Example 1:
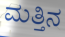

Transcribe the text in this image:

ಮತ್ತಿನ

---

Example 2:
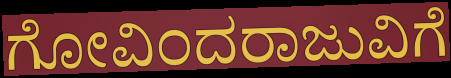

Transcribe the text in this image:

ಗೋವಿಂದರಾಜುವಿಗೆ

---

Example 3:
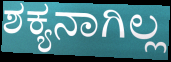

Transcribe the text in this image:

ಶಕ್ಯನಾಗಿಲ್ಲ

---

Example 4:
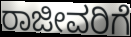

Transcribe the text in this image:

ರಾಜೀವರಿಗೆ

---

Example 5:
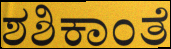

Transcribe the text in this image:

ಶಶಿಕಾಂತೆ